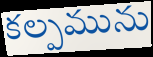
కల్పమును